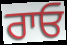
ਰਾਓ